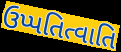
ઉપ્પતિત્વાતિ